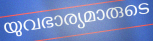
യുവഭാര്യമാരുടെ